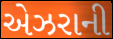
એઝરાની